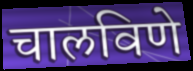
चालविणे